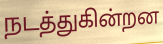
நடத்துகின்றன